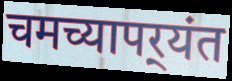
चमच्यापर्यंत